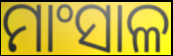
ମାଂସାଳ